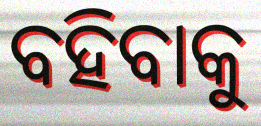
ବହିବାକୁ